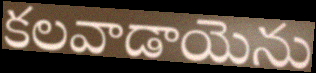
కలవాడాయెను